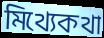
মিথ্যেকথা